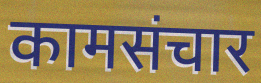
कामसंचार